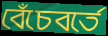
বেঁচেবর্তে